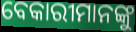
ବେକାରୀମାନଙ୍କୁ